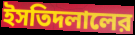
ইসতিদলালের